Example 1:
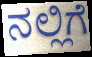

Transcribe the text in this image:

ನಲ್ಲಿಗೆ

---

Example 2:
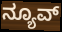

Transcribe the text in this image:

ನ್ಯೂವ್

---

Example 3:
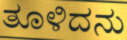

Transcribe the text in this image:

ತೂಳಿದನು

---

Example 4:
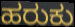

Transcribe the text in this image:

ಹರುಕು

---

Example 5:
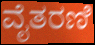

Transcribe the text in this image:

ವೈತರಣಿ